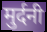
मुर्दनी